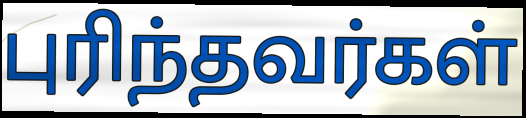
புரிந்தவர்கள்